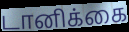
டானிக்கை